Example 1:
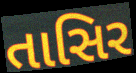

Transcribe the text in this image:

તાસિર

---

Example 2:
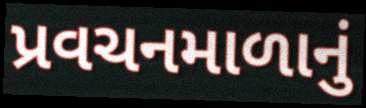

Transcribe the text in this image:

પ્રવચનમાળાનું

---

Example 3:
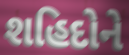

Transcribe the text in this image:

શહિદોને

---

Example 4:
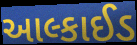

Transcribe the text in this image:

આલ્કાઈડ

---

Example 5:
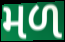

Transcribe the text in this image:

મળ